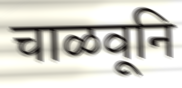
चाळवूनि